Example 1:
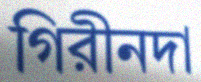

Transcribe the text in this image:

গিরীনদা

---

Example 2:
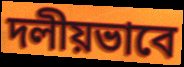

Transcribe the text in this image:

দলীয়ভাবে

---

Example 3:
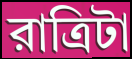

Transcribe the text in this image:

রাত্রিটা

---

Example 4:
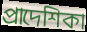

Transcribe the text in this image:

প্রাদেশিকা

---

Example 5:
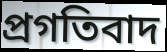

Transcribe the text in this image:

প্রগতিবাদ